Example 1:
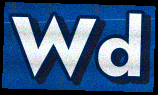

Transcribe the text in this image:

Wd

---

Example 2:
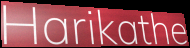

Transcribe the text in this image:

Harikathe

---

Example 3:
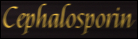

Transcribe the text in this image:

Cephalosporin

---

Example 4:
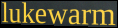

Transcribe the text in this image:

lukewarm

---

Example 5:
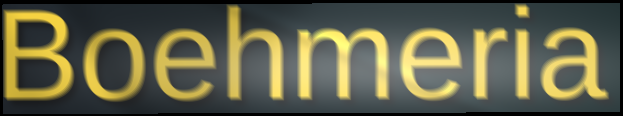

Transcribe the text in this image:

Boehmeria